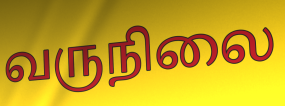
வருநிலை